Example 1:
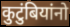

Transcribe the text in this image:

कुटुंबियांनो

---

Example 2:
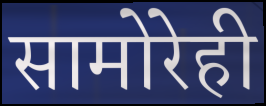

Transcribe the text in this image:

सामोरेही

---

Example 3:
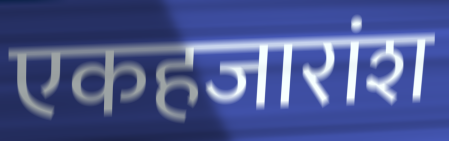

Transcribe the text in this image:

एकहजारांश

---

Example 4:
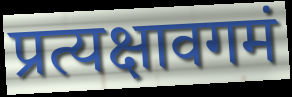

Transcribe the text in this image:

प्रत्यक्षावगमं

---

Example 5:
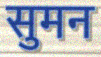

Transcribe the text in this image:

सुमन